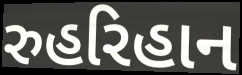
રુહરિહાન